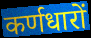
कर्णधारों